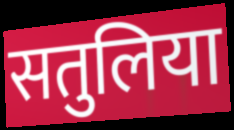
सतुलिया